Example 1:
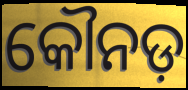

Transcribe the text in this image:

କୌନଡ଼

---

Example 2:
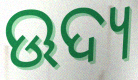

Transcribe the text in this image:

ଊଦ୍ୟ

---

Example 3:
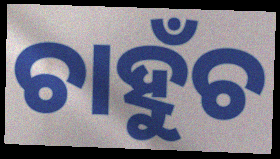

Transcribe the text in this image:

ଚାହୁଁଚ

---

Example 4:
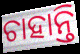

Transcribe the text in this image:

ଚାହାନ୍ତି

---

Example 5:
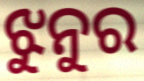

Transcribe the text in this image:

ଝୁନୁର